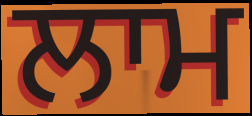
ਲਾਮ